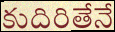
కుదిరితేనే